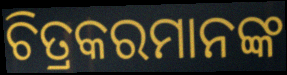
ଚିତ୍ରକରମାନଙ୍କ